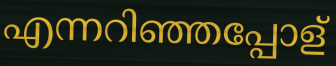
എന്നറിഞ്ഞപ്പോള്